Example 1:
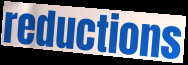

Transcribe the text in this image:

reductions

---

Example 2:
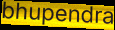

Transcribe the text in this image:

bhupendra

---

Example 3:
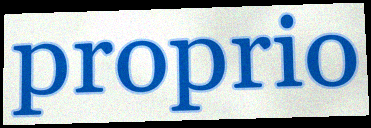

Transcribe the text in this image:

proprio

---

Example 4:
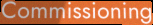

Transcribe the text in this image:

Commissioning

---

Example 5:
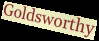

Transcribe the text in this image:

Goldsworthy